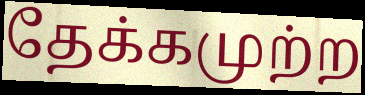
தேக்கமுற்ற